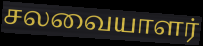
சலவையாளர்